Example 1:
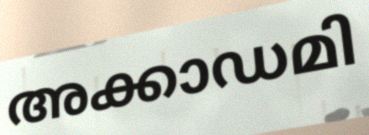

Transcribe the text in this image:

അക്കാഡമി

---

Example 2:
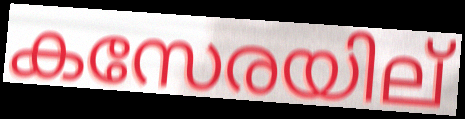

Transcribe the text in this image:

കസേരയില്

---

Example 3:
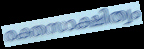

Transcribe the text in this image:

രക്തസാക്ഷിത്വം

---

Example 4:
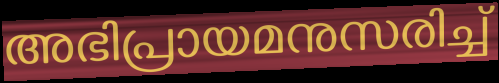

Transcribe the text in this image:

അഭിപ്രായമനുസരിച്ച്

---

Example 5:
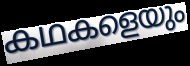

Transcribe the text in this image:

കഥകളെയും